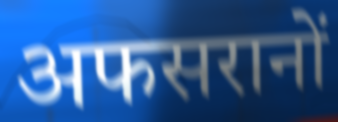
अफसरानों